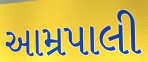
આમ્રપાલી